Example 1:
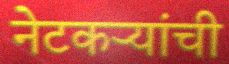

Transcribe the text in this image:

नेटकऱ्यांची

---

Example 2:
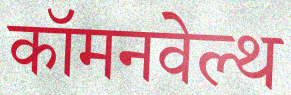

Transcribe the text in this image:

कॉमनवेल्थ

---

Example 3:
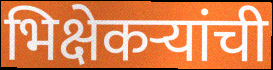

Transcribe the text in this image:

भिक्षेकऱ्यांची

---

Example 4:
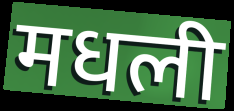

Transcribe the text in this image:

मधली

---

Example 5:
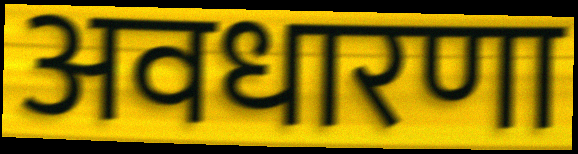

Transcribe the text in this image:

अवधारणा